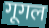
गूगल